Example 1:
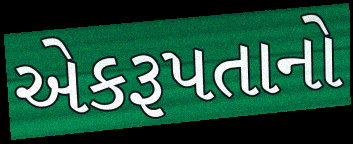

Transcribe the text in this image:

એકરૂપતાનો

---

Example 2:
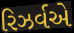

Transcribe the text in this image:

રિઝર્વએ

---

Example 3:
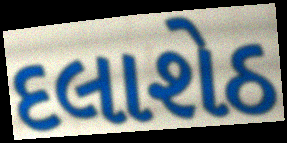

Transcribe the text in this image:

દલાશેઠ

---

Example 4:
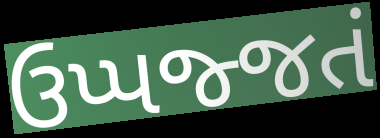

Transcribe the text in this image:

ઉપ્પજ્જતં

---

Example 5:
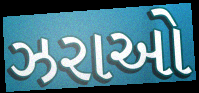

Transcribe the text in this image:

ઝરાઓ